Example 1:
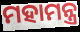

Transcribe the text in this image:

ମହାମନ୍ତ୍ର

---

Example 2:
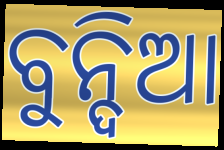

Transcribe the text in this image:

ବୁନ୍ଦିଆ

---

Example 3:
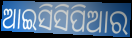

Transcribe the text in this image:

ଆଇସିସିପିଆର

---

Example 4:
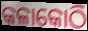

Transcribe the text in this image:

କଳାକୋଠି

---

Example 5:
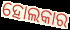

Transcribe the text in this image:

ହୋଲକାର